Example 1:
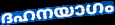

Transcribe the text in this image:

ദഹനയാഗം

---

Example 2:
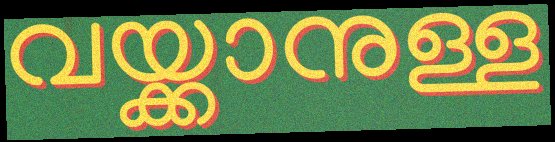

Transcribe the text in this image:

വയ്ക്കാനുള്ള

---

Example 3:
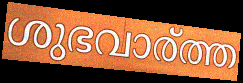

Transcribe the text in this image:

ശുഭവാര്ത്ത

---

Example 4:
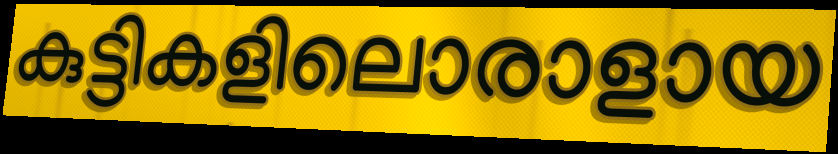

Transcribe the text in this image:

കുട്ടികളിലൊരാളായ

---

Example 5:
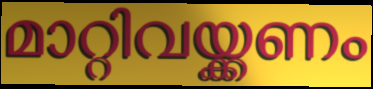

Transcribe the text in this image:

മാറ്റിവയ്ക്കണം